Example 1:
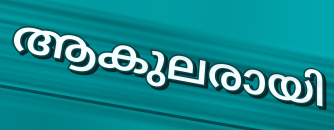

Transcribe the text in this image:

ആകുലരായി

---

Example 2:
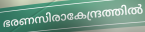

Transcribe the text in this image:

ഭരണസിരാകേന്ദ്രത്തിൽ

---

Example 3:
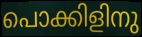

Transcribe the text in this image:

പൊക്കിളിനു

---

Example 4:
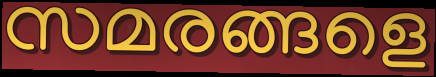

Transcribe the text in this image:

സമരങ്ങളെ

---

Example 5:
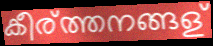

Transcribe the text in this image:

കീര്ത്തനങ്ങള്